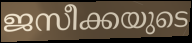
ജസീക്കയുടെ